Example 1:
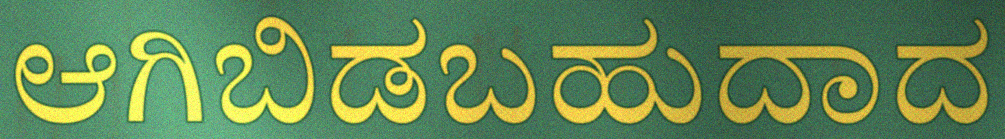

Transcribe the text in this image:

ಆಗಿಬಿಡಬಹುದಾದ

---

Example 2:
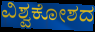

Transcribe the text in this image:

ವಿಶ್ವಕೋಶದ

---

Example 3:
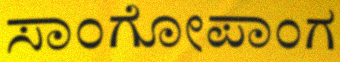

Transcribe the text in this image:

ಸಾಂಗೋಪಾಂಗ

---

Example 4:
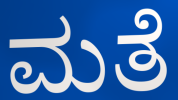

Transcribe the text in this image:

ಮತೆ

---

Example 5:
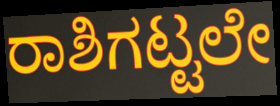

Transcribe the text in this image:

ರಾಶಿಗಟ್ಟಲೇ